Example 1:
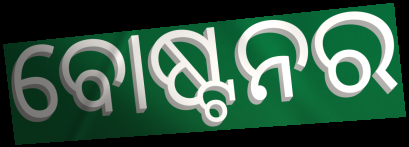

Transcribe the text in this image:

ବୋଷ୍ଟନର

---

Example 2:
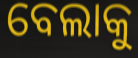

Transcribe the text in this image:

ବେଲାକୁ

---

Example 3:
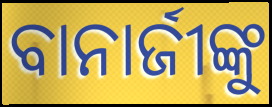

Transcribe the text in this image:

ବାନାର୍ଜୀଙ୍କୁ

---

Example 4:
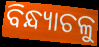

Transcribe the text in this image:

ବିନ୍ଧ୍ୟାଚଳୁ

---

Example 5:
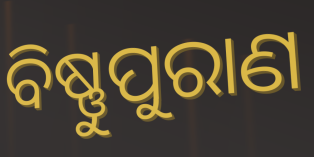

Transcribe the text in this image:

ବିଷ୍ଣୁପୁରାଣ